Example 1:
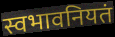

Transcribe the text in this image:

स्वभावनियतं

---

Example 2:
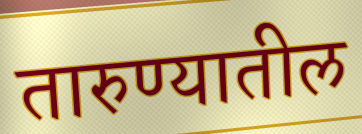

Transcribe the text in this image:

तारुण्यातील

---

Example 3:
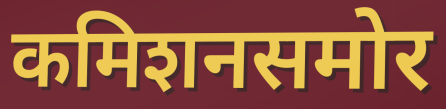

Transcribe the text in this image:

कमिशनसमोर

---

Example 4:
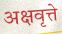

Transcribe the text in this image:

अक्षवृत्ते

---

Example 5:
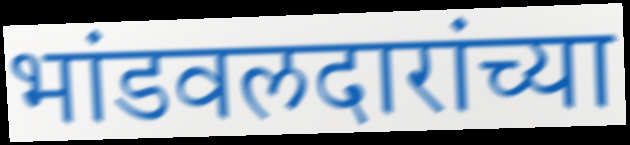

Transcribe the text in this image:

भांडवलदारांच्या